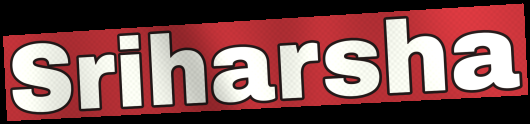
Sriharsha